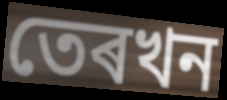
তেৰখন